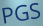
PGS